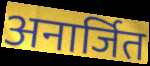
अनार्जित